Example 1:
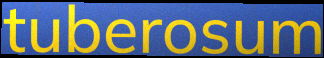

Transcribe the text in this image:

tuberosum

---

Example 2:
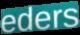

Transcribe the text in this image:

eders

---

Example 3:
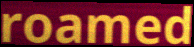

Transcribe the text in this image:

roamed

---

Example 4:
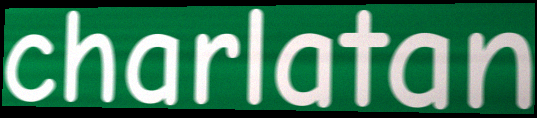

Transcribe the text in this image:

charlatan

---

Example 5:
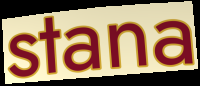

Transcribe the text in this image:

stana